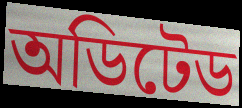
অডিটেড